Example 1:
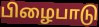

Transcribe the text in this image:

பிழைபாடு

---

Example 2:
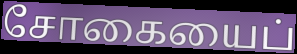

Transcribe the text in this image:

சோகையைப்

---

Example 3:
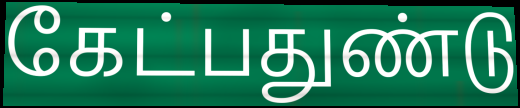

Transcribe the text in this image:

கேட்பதுண்டு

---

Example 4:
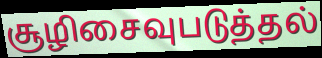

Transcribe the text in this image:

சூழிசைவுபடுத்தல்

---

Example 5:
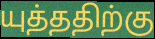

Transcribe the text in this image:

யுத்ததிற்கு